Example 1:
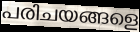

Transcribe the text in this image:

പരിചയങ്ങളെ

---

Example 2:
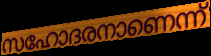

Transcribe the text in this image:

സഹോദരനാണെന്ന്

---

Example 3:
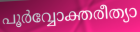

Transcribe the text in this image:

പൂർവ്വോക്തരീത്യാ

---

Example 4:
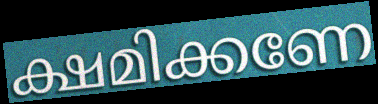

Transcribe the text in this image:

ക്ഷമിക്കണേ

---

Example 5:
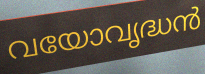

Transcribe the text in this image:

വയോവൃദ്ധൻ